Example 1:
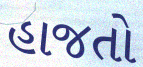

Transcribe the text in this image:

હાજતો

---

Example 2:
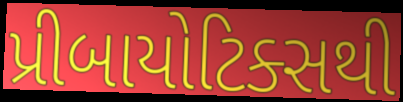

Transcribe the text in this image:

પ્રીબાયોટિક્સથી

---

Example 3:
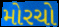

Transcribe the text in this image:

મોરચો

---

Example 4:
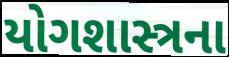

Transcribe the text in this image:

યોગશાસ્ત્રના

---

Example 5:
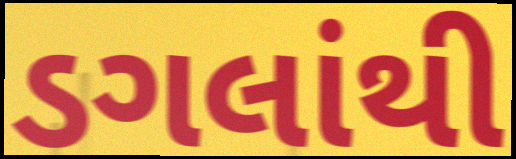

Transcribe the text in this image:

ડગલાંથી